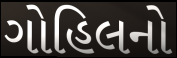
ગોહિલનો